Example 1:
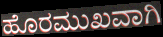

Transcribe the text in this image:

ಹೊರಮುಖವಾಗಿ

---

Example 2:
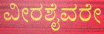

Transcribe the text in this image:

ವೀರಶೈವರೇ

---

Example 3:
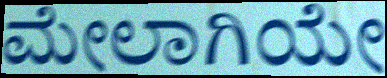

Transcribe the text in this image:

ಮೇಲಾಗಿಯೇ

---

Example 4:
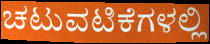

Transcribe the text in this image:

ಚಟುವಟಿಕೆಗಳಲ್ಲಿ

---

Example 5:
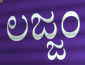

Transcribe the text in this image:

ಲಜ್ಜಂ